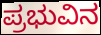
ಪ್ರಭುವಿನ